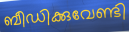
ബീഡിക്കുവേണ്ടി